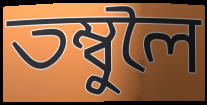
তম্বুলৈ